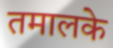
तमालके